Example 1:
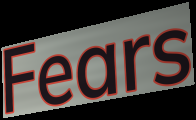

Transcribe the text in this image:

Fears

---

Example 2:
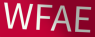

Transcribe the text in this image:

WFAE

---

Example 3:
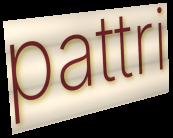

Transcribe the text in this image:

pattri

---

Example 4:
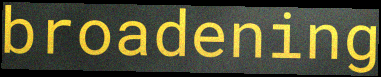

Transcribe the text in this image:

broadening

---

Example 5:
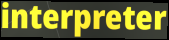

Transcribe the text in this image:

interpreter